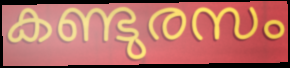
കണ്ടുരസം